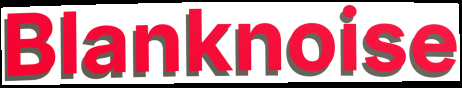
Blanknoise